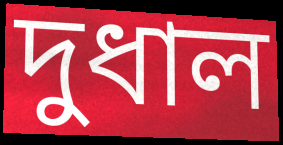
দুধাল